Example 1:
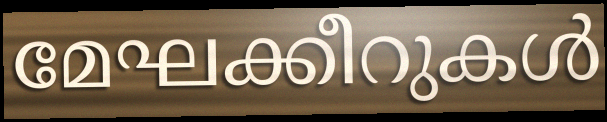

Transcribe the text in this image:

മേഘക്കീറുകൾ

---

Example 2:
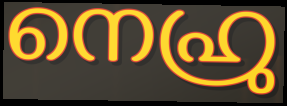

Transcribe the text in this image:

നെഹ്രു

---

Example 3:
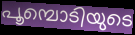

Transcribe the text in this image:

പൂമ്പൊടിയുടെ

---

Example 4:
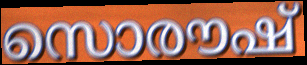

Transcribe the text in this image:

സൊരൗഷ്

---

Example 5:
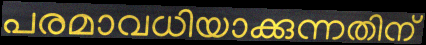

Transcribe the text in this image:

പരമാവധിയാക്കുന്നതിന്